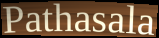
Pathasala